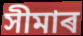
সীমাৰ